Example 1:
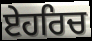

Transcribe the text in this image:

ਏਹਰਿਚ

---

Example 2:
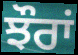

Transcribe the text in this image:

ਝੌਰਾਂ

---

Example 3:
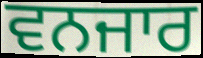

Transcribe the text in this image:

ਵਨਜਾਰ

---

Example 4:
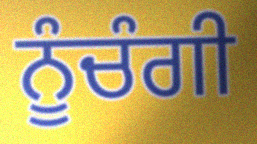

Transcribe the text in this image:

ਨੂੰਚੰਗੀ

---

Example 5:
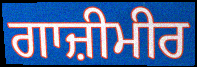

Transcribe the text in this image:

ਗਾਜ਼ੀਮੀਰ